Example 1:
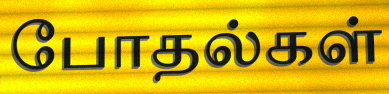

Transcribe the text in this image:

போதல்கள்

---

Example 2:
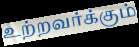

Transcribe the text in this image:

உற்றவர்க்கும்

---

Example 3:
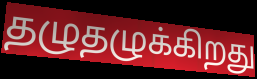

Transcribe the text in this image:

தழுதழுக்கிறது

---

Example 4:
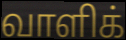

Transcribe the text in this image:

வாளிக்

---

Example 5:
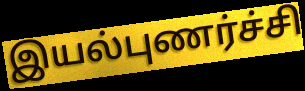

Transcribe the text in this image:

இயல்புணர்ச்சி